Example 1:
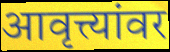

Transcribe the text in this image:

आवृत्त्यांवर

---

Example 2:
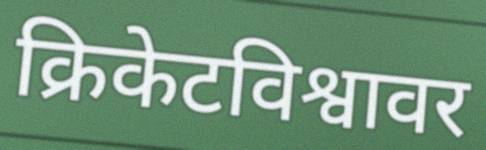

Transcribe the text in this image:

क्रिकेटविश्वावर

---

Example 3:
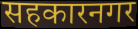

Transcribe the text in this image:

सहकारनगर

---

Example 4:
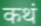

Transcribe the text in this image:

कथं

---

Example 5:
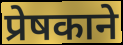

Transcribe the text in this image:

प्रेषकाने